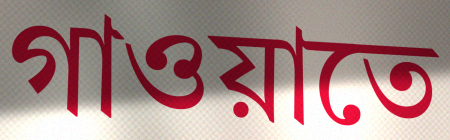
গাওয়াতে